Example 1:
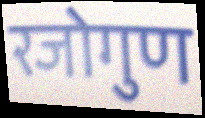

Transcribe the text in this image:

रजोगुण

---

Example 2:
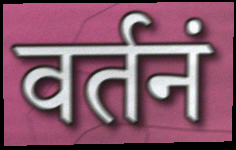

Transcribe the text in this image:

वर्तनं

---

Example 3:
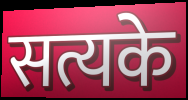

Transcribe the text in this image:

सत्यके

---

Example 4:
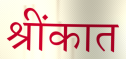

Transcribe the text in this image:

श्रींकात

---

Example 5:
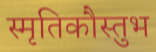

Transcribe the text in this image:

स्मृतिकौस्तुभ